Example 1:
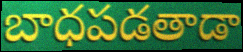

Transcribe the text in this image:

బాధపడతాడా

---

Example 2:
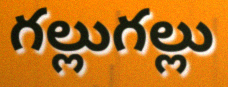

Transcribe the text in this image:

గల్లుగల్లు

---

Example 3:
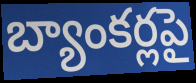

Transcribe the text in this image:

బ్యాంకర్లపై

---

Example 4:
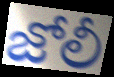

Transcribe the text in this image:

జోలీ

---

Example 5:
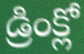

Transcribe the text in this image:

డ్రింక్లో